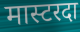
मास्टरदा